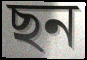
ছন